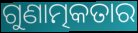
ଗୁଣାତ୍ମକତାର